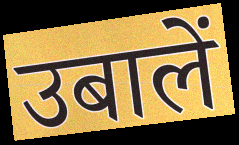
उबालें